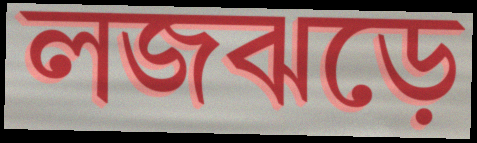
লজঝড়ে